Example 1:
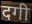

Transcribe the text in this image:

दगी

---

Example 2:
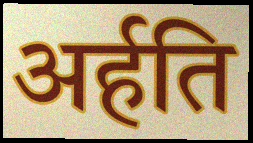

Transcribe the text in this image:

अर्हति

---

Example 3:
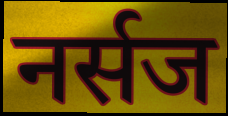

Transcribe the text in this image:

नर्सज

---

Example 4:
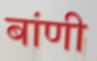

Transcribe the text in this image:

बांणी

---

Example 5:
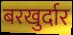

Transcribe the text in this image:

बरखुर्दार